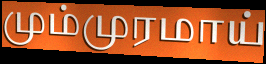
மும்முரமாய்